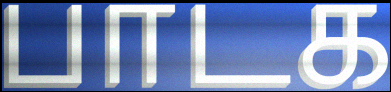
பாடக